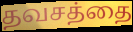
தவசத்தை